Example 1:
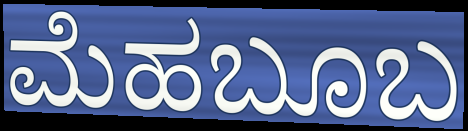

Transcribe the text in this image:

ಮೆಹಬೂಬ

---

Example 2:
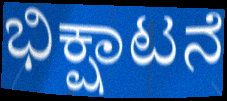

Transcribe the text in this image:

ಭಿಕ್ಷಾಟನೆ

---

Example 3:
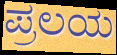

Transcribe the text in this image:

ಪ್ರಲಯ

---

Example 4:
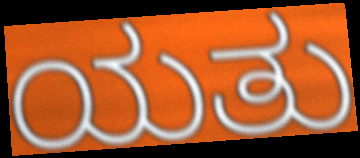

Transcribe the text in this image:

ಯತು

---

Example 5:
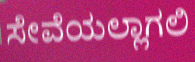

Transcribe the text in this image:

ಸೇವೆಯಲ್ಲಾಗಲಿ